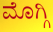
ಮೊಗ್ಗಿ